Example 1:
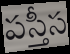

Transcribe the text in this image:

పస్తీస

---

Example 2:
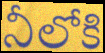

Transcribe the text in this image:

నీలోకి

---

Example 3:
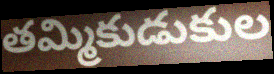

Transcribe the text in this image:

తమ్మికుడుకుల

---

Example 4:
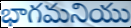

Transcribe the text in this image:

భాగమనియు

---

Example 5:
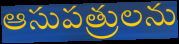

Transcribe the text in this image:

ఆసుపత్రులను